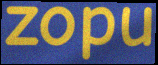
zopu